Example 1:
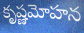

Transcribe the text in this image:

కృష్ణమోహన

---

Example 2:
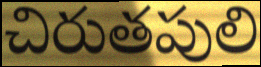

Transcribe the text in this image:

చిరుతపులి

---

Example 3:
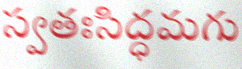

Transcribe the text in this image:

స్వతఃసిద్ధమగు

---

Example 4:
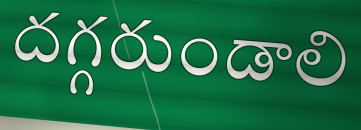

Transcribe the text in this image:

దగ్గరుండాలి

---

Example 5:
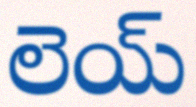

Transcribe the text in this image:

లెయ్